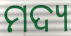
ମଦ୍ଯ